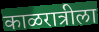
काळरात्रीला